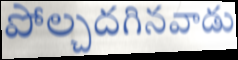
పోల్చదగినవాడు